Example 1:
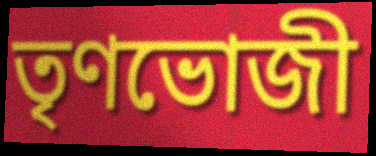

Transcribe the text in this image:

তৃণভোজী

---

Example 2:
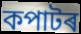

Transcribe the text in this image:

কপাটৰ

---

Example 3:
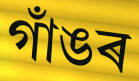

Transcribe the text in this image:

গাঁঙৰ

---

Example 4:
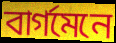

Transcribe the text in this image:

বাৰ্গমেনে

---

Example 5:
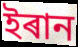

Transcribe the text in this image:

ইৰান